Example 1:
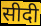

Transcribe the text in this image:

सीदी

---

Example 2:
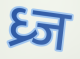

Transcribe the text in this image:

ध्र्ज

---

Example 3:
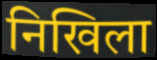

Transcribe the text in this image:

निखिला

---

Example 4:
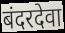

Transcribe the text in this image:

बंदरदेवा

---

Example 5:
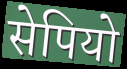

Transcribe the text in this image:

सेपियो